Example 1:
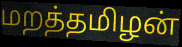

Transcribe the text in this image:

மறத்தமிழன்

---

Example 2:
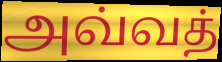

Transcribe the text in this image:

அவ்வத்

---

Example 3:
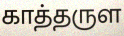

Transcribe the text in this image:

காத்தருள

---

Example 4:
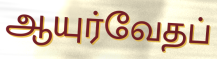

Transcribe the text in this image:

ஆயுர்வேதப்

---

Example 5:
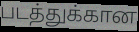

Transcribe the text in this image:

படத்துக்கான